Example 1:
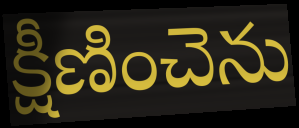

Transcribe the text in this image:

క్షీణించెను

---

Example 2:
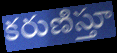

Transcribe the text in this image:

కరుణిస్తూ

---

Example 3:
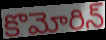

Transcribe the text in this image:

కొమోరిన్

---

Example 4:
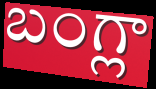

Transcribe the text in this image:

బంగ్లా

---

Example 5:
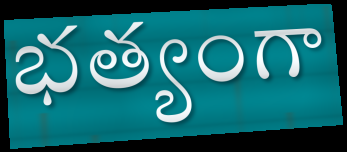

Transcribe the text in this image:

భత్యంగా